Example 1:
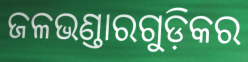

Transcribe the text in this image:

ଜଳଭଣ୍ଡାରଗୁଡ଼ିକର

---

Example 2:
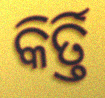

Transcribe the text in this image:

କିର୍ତ୍ତି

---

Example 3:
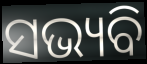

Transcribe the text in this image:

ସଭ୍ୟବି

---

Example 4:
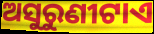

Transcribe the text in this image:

ଅସୁରୁଣୀଟାଏ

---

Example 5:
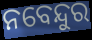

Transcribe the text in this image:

ନବେନ୍ଦୁର